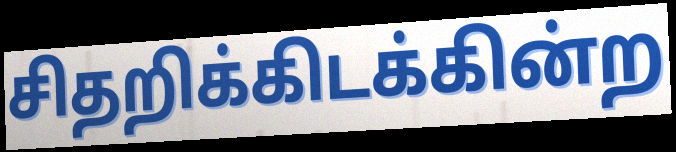
சிதறிக்கிடக்கின்ற